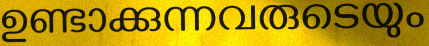
ഉണ്ടാക്കുന്നവരുടെയും